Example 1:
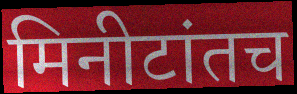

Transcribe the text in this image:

मिनीटांतच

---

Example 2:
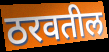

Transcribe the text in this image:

ठरवतील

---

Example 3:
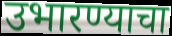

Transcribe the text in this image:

उभारण्याचा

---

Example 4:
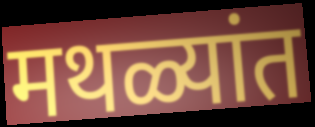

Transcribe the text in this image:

मथळ्यांत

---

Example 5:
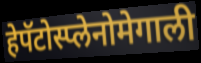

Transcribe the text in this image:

हेपॅटोस्प्लेनोमेगाली